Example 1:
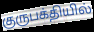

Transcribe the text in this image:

குருபக்தியில்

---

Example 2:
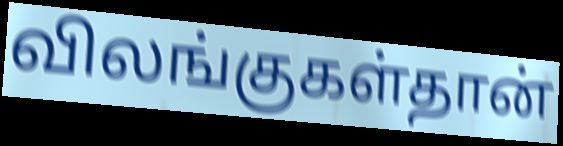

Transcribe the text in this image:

விலங்குகள்தான்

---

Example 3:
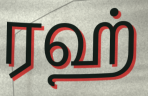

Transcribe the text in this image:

ரஹ்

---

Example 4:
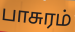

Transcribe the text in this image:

பாசுரம்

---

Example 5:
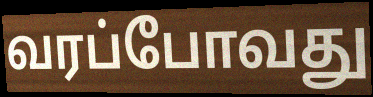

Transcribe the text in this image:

வரப்போவது